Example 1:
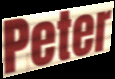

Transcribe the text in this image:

Peter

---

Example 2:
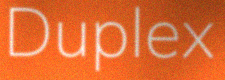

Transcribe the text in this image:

Duplex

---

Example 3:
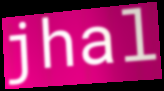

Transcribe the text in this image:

jhal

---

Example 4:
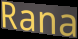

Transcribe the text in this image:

Rana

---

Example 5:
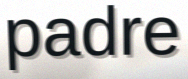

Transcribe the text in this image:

padre